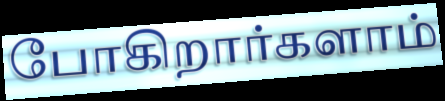
போகிறார்களாம்